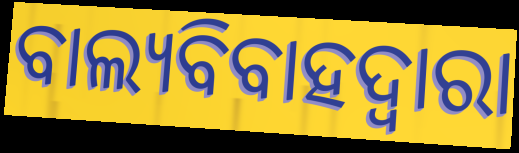
ବାଲ୍ୟବିବାହଦ୍ୱାରା